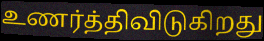
உணர்த்திவிடுகிறது